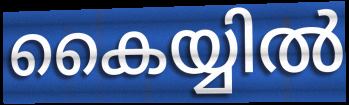
കൈയ്യിൽ